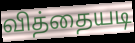
வித்தையடி